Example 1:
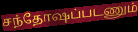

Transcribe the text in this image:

சந்தோஷப்படணும்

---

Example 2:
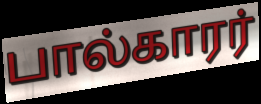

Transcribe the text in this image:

பால்காரர்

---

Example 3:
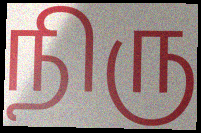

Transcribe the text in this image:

நிரு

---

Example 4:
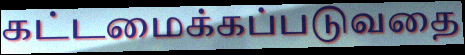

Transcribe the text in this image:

கட்டமைக்கப்படுவதை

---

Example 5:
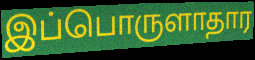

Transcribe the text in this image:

இப்பொருளாதார